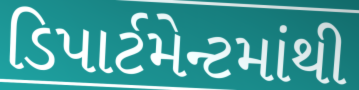
ડિપાર્ટમેન્ટમાંથી